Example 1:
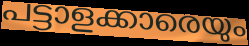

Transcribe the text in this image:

പട്ടാളക്കാരെയും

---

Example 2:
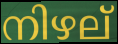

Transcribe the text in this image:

നിഴല്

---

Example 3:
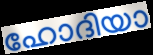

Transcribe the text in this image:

ഹോദിയാ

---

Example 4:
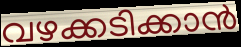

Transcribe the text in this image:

വഴക്കടിക്കാൻ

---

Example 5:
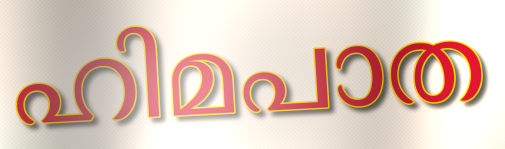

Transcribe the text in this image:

ഹിമപാത